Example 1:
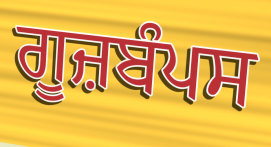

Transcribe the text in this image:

ਗੂਜ਼ਬੰਪਸ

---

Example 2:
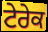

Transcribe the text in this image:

ਟੇਰੇਕ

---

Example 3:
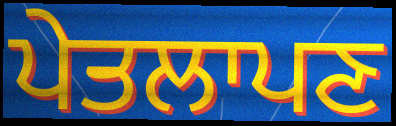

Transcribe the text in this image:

ਪੇਤਲਾਪਣ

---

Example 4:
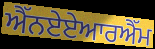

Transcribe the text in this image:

ਐੱਨਏਏਆਰਐੱਮ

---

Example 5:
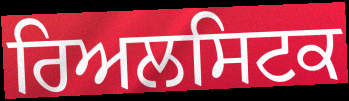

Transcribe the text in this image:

ਰਿਅਲਸਿਟਕ